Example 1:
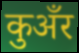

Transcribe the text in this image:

कुअँर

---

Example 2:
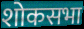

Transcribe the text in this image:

शोकसभा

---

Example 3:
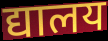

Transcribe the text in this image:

द्यालय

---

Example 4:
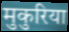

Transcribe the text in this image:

मुकुरिया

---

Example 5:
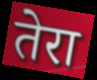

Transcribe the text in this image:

तेरा